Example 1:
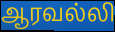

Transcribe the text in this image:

ஆரவல்லி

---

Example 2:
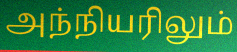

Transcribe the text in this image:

அந்நியரிலும்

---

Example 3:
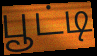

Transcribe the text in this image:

பூட்டி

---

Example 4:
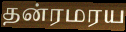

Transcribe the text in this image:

தன்ரமரய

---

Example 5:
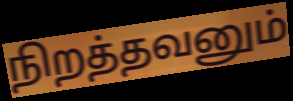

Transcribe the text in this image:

நிறத்தவனும்